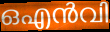
ഒഎൻവി